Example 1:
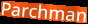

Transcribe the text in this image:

Parchman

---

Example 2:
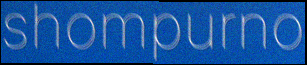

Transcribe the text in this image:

shompurno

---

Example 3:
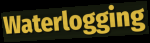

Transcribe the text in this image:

Waterlogging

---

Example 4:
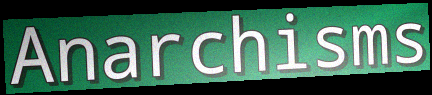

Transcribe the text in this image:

Anarchisms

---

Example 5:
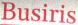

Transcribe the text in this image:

Busiris